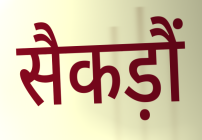
सैकड़ौं